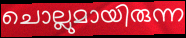
ചൊല്ലുമായിരുന്ന